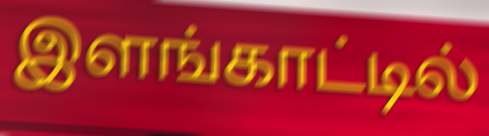
இளங்காட்டில்